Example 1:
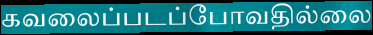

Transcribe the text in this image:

கவலைப்படப்போவதில்லை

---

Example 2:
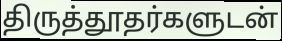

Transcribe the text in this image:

திருத்தூதர்களுடன்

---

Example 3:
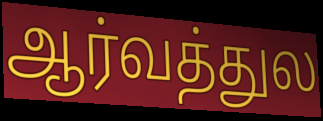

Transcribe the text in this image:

ஆர்வத்துல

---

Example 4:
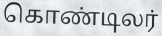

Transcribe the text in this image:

கொண்டிலர்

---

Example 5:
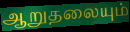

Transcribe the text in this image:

ஆறுதலையும்